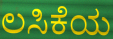
ಲಸಿಕೆಯ